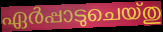
ഏർപ്പാടുചെയ്തു